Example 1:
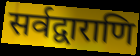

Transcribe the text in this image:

सर्वद्वाराणि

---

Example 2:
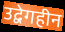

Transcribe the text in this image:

उद्वेगहीन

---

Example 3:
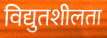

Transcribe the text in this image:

विद्युतशीलता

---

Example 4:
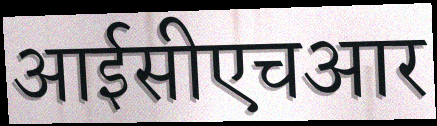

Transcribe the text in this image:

आईसीएचआर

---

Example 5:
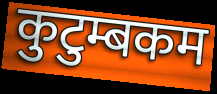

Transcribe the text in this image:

कुटुम्बकम